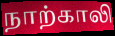
நாற்காலி